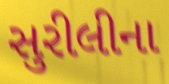
સુરીલીના